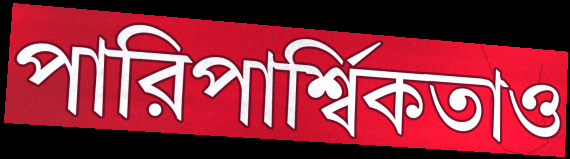
পারিপার্শ্বিকতাও